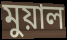
মুয়াল